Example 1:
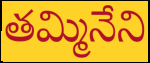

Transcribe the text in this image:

తమ్మినేని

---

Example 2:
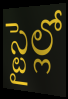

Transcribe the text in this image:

స్టైల్లో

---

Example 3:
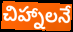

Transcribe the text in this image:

చిహ్నాలనే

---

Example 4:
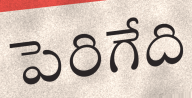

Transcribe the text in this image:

పెరిగేది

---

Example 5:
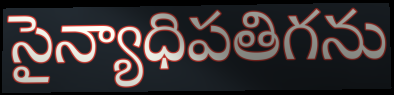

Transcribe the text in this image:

సైన్యాధిపతిగను